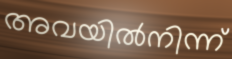
അവയിൽനിന്ന്